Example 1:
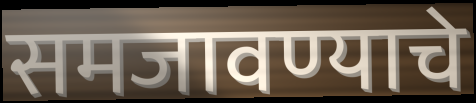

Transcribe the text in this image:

समजावण्याचे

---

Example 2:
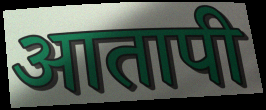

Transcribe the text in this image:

आतापी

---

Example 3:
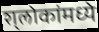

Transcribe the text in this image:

श्लोकांमध्ये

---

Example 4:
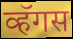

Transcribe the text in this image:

व्हॅगस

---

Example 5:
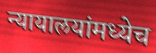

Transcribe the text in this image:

न्यायालयांमध्येच